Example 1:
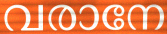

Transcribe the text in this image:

വരാനേ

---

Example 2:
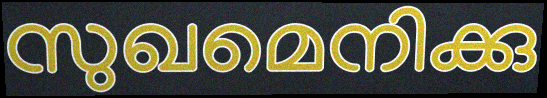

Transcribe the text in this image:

സുഖമെനിക്കു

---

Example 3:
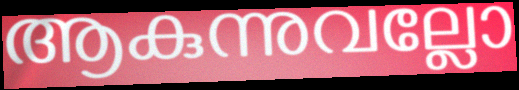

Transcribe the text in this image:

ആകുന്നുവല്ലോ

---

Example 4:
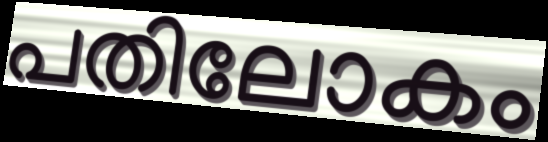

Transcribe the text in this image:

പതിലോകം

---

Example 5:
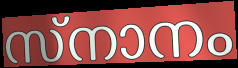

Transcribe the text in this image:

സ്‌നാനം